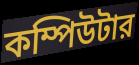
কম্পিউটার